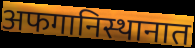
अफगानिस्थानात